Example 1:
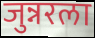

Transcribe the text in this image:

जुन्नरला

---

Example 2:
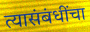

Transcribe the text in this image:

त्यासंबंधींचा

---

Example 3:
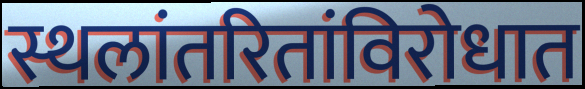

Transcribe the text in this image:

स्थलांतरितांविरोधात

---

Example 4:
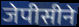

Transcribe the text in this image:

जेपीसीने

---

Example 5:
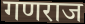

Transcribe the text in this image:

गणराज